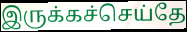
இருக்கச்செய்தே